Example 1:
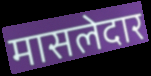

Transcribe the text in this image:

मासलेदार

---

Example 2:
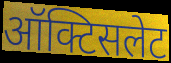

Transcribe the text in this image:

ऑक्टिसलेट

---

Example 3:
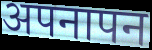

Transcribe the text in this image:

अपनापन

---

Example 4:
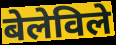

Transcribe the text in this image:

बेलेविले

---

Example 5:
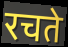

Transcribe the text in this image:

रचते